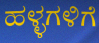
ಹಳ್ಳಗಳಿಗೆ